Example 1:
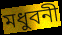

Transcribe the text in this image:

মধুবনী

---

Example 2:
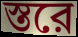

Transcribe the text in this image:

স্তরে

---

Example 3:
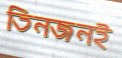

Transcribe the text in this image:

তিনজনই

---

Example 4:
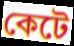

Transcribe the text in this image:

কেটে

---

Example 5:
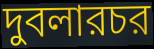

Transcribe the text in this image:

দুবলারচর